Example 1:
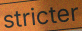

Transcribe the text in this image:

stricter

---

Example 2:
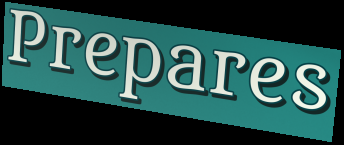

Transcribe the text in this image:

Prepares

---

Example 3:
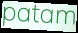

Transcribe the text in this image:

patam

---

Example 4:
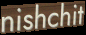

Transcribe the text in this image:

nishchit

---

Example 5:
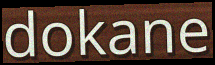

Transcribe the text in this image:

dokane